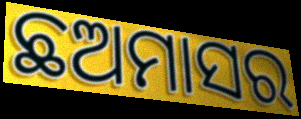
ଛଅମାସର